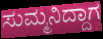
ಸುಮ್ಮನಿದ್ದಾಗ